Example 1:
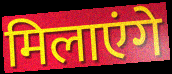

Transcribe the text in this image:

मिलाएंगे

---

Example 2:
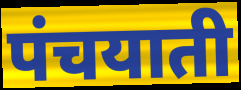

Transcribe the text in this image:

पंचयाती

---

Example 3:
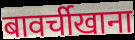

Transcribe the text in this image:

बावर्चीखाना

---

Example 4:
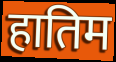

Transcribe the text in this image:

हातिम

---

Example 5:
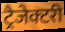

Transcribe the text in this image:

ट्रैजेक्‍टरी